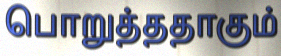
பொறுத்ததாகும்